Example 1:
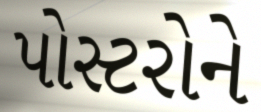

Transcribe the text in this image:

પોસ્ટરોને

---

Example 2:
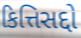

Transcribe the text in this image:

કિત્તિસદ્દો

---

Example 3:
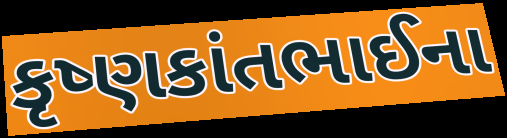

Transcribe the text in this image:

કૃષ્ણકાંતભાઈના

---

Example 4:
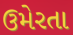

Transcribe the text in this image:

ઉમેરતા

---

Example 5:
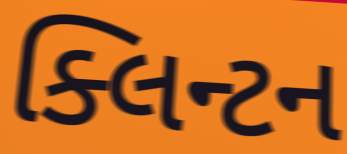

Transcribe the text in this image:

ક્લિન્ટન